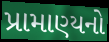
પ્રામાણ્યનો